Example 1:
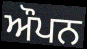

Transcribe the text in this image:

ਔਪਨ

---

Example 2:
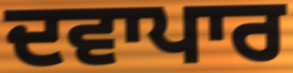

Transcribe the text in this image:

ਦਵਾਪਾਰ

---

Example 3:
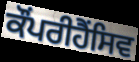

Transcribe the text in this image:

ਕੌਂਪਰੀਹੈਂਸਿਵ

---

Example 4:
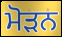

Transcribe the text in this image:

ਮੋੜਨ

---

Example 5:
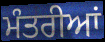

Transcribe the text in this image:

ਮੰਤਰੀਆਂ